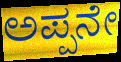
ಅಪ್ಪನೇ